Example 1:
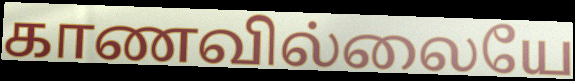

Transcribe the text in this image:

காணவில்லையே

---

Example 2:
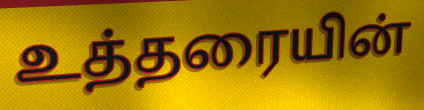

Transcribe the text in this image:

உத்தரையின்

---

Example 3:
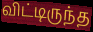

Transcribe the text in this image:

விட்டிருந்த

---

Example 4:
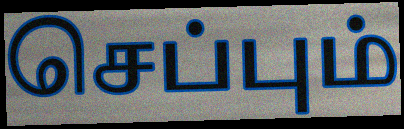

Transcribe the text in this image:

செப்பும்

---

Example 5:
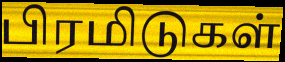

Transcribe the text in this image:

பிரமிடுகள்